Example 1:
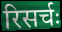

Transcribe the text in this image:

रिसर्चः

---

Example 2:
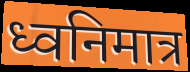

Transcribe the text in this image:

ध्वनिमात्र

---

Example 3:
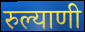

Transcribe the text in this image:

रुल्याणी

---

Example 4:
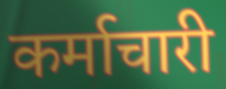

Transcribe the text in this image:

कर्माचारी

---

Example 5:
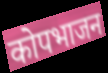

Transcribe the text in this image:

कोपभाजन